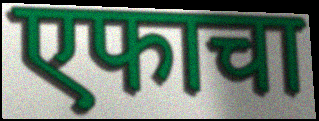
एफाचा